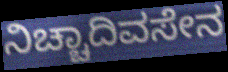
ನಿಚ್ಚಾದಿವಸೇನ